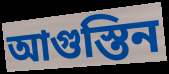
আগুস্তিন